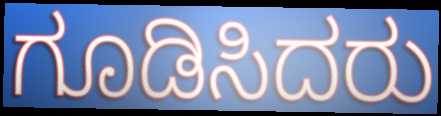
ಗೂಡಿಸಿದರು